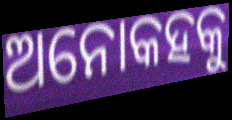
ଅନୋକହକୁ